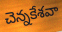
చెన్నకేశవా